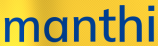
manthi